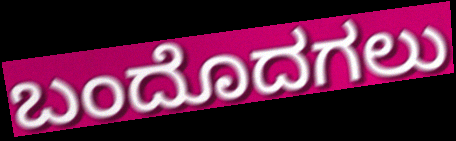
ಬಂದೊದಗಲು